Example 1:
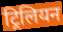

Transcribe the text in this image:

ट्रिलियन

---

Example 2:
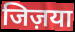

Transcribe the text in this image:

जिज़या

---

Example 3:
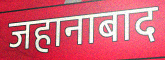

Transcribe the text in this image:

जहानाबाद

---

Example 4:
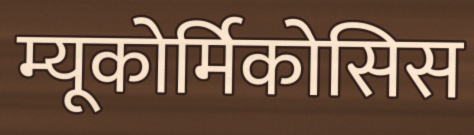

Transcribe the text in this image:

म्यूकोर्मिकोसिस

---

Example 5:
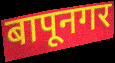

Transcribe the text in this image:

बापूनगर